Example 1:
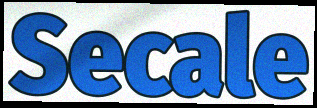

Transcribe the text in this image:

Secale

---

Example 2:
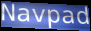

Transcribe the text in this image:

Navpad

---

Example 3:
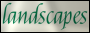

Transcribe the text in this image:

landscapes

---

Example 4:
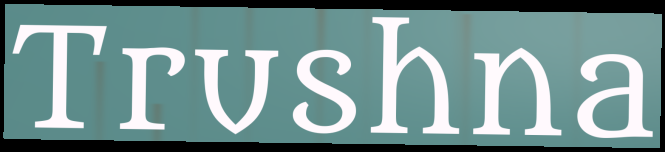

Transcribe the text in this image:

Trushna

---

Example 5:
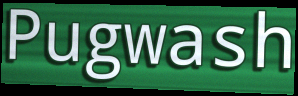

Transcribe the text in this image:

Pugwash